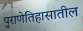
पुराणेतिहासातील